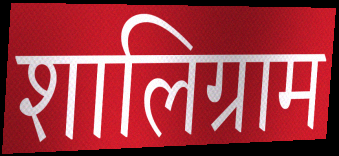
शालिग्राम